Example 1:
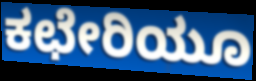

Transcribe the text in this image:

ಕಛೇರಿಯೂ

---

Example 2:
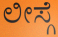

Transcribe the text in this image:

ಲೀಸ್ಗೆ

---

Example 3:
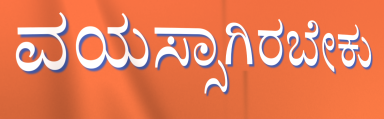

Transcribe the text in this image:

ವಯಸ್ಸಾಗಿರಬೇಕು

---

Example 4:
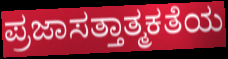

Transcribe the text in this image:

ಪ್ರಜಾಸತ್ತಾತ್ಮಕತೆಯ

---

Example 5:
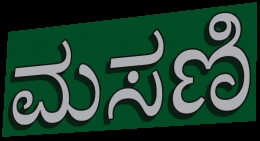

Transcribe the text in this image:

ಮಸಣಿ